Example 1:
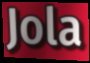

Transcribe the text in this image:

Jola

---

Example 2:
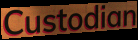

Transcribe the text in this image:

Custodian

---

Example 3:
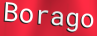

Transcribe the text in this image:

Borago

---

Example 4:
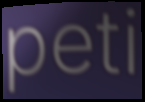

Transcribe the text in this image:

peti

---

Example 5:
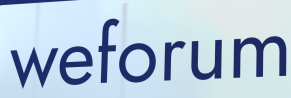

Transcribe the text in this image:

weforum